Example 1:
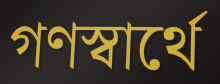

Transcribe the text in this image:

গণস্বার্থে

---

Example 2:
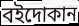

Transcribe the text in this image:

বইদোকান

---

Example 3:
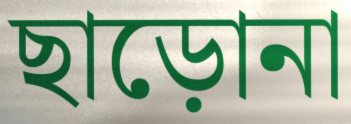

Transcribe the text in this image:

ছাড়োনা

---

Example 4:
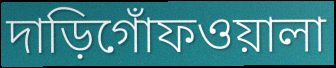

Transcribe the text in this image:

দাড়িগোঁফওয়ালা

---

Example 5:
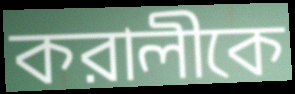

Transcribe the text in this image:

করালীকে